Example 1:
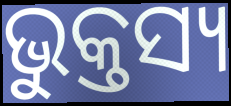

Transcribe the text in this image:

ଭୁକ୍ତସ୍ୟ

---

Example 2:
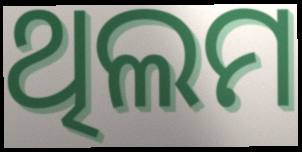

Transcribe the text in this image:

ଥିଲମ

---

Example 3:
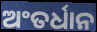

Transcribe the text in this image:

ଅଂତର୍ଧାନ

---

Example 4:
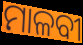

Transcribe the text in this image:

ମାଳବୀ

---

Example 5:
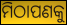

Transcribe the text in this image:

ମିଠାପଣକୁ